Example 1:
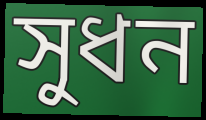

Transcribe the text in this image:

সুধন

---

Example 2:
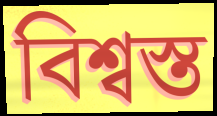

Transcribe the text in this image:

বিশ্বস্ত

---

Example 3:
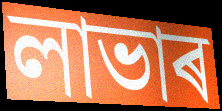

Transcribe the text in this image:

লাভাৰ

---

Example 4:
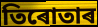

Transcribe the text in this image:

তিৰোতাৰ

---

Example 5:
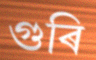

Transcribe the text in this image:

গুৰি